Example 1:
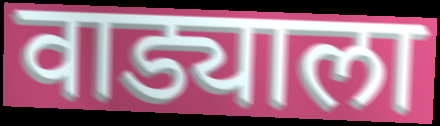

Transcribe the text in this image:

वाड्याला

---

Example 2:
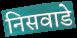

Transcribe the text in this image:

निसवाडे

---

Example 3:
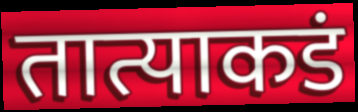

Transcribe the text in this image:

तात्याकडं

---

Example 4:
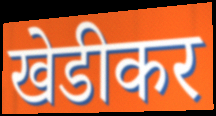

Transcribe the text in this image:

खेडीकर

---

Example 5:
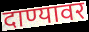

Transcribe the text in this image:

दाण्यावर